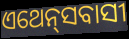
ଏଥେନ୍‌ସବାସୀ